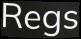
Regs